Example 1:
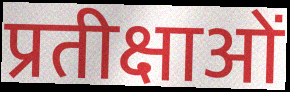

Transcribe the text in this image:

प्रतीक्षाओं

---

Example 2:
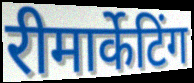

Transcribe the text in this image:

रीमार्केटिंग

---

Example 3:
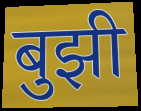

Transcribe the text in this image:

बुझी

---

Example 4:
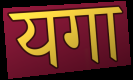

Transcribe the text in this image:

यगा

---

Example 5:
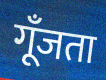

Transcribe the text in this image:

गूँजता